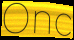
Onc